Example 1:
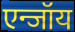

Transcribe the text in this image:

एन्जॉय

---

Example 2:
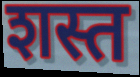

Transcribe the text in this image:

शस्त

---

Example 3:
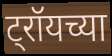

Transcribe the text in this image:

ट्रॉयच्या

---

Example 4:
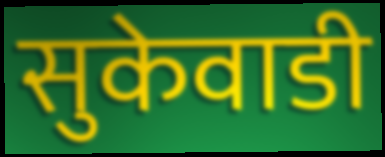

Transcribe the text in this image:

सुकेवाडी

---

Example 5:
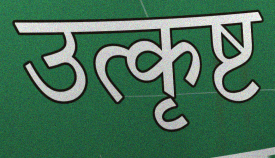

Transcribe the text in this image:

उत्कृष्ट